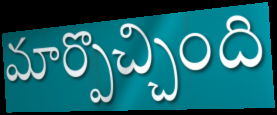
మార్పొచ్చింది